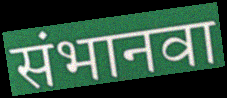
संभानवा